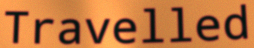
Travelled